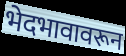
भेदभावावरून